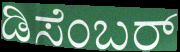
ಡಿಸೆಂಬರ್